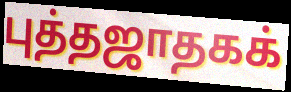
புத்தஜாதகக்